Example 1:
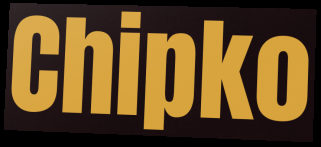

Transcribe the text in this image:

Chipko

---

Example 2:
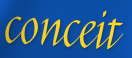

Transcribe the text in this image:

conceit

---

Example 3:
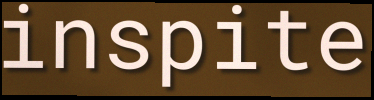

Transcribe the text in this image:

inspite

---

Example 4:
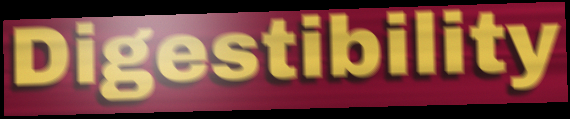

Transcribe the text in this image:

Digestibility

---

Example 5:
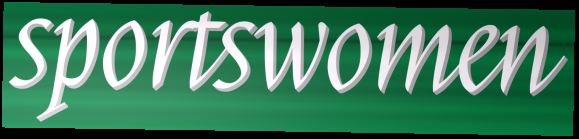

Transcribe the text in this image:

sportswomen